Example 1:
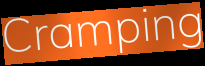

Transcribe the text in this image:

Cramping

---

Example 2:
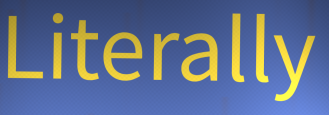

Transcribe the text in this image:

Literally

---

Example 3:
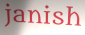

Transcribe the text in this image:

janish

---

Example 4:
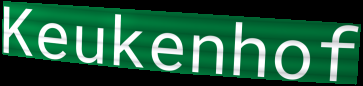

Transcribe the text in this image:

Keukenhof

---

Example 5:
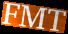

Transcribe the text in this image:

FMT